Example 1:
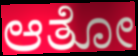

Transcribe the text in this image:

ಆತೋ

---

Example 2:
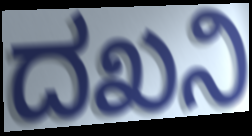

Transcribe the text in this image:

ದಖನಿ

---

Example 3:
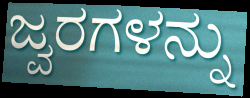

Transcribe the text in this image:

ಜ್ವರಗಳನ್ನು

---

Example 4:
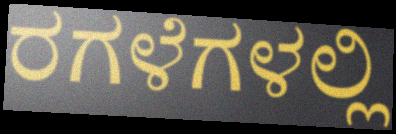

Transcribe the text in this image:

ರಗಳೆಗಳಲ್ಲಿ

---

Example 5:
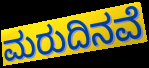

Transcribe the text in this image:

ಮರುದಿನವೆ